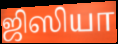
ஜிஸியா